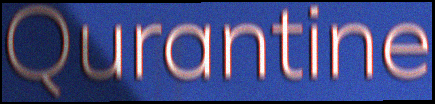
Qurantine